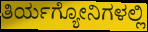
ತಿರ್ಯಗ್ಯೋನಿಗಳಲ್ಲಿ